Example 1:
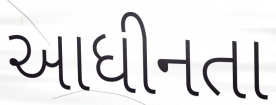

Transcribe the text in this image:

આધીનતા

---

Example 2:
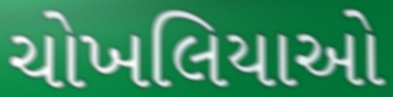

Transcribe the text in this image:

ચોખલિયાઓ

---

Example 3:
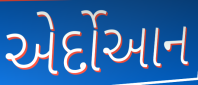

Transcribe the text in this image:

એર્દોઆન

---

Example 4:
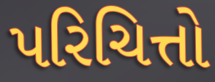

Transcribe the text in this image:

પરિચિત્તો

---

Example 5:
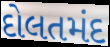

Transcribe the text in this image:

દોલતમંદ